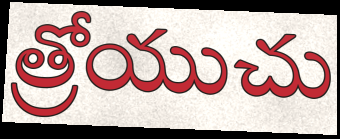
త్రోయుచు